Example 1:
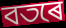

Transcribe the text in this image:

বতৰে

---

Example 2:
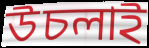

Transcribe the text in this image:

উচলাই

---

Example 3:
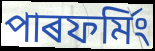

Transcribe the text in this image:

পাৰফৰ্মিং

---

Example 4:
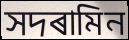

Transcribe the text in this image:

সদৰামিন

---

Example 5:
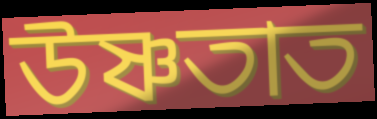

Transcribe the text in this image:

উষ্ণতাত